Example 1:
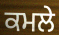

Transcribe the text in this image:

ਕਮਲੇ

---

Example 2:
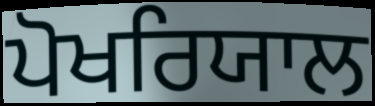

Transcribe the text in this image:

ਪੋਖਰਿਯਾਲ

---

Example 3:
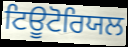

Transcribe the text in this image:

ਟਿਊਟੋਰਿਯਲ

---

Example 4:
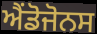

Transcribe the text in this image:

ਐਂਡੋਜੋਨਸ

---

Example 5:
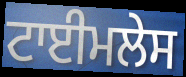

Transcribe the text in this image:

ਟਾਈਮਲੇਸ